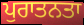
ਪੁਰਾਤਨਤਾ